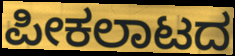
ಪೀಕಲಾಟದ